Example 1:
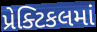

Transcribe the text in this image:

પ્રેક્ટિકલમાં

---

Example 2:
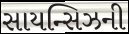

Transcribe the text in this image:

સાયન્સિઝની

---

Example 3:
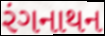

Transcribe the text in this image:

રંગનાથન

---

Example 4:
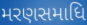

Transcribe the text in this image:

મરણસમાધિ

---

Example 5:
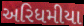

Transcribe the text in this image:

અરિધમીયા